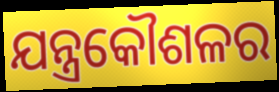
ଯନ୍ତ୍ରକୌଶଳର